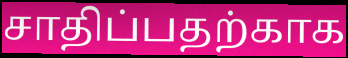
சாதிப்பதற்காக